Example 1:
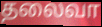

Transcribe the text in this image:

தலைவா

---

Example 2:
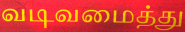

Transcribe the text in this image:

வடிவமைத்து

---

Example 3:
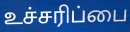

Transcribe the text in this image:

உச்சரிப்பை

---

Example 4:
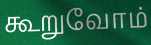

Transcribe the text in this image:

கூறுவோம்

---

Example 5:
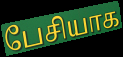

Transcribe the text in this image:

பேசியாக